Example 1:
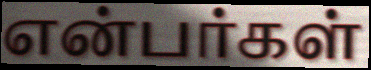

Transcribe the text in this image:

என்பர்கள்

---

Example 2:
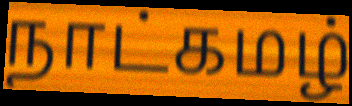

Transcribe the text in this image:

நாட்கமழ்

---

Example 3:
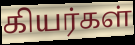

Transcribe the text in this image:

கியர்கள்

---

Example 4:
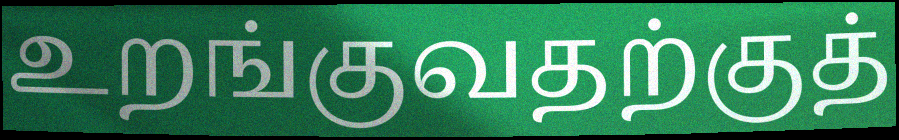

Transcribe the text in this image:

உறங்குவதற்குத்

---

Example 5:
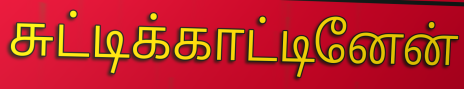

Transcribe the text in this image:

சுட்டிக்காட்டினேன்